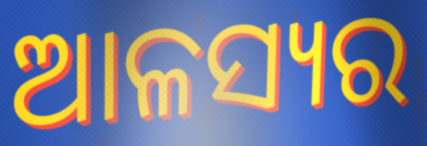
ଆଳସ୍ୟର